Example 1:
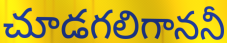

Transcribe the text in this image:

చూడగలిగాననీ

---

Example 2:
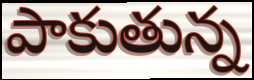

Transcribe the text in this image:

పాకుతున్న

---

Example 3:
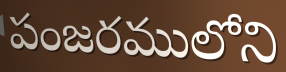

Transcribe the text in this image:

పంజరములోని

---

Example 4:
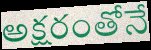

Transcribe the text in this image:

అక్షరంతోనే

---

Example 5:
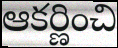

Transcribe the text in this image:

ఆకర్ణించి